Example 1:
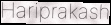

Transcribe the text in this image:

Hariprakash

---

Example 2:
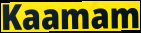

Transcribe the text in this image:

Kaamam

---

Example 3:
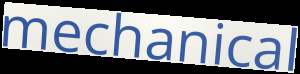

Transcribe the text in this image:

mechanical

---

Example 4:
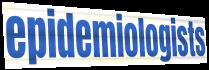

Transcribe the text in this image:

epidemiologists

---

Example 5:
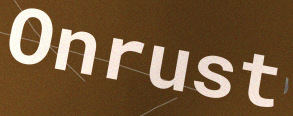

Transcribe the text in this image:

Onrust